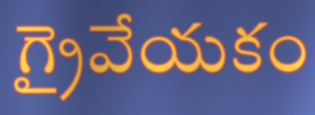
గ్రైవేయకం